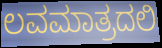
ಲವಮಾತ್ರದಲಿ